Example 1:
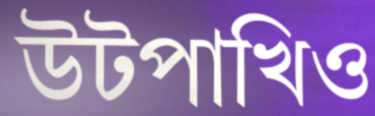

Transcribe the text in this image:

উটপাখিও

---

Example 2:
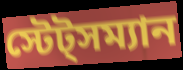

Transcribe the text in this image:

স্টেট্সম্যান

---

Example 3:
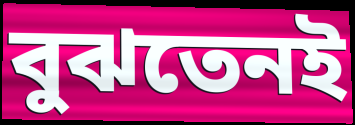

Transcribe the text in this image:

বুঝতেনই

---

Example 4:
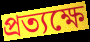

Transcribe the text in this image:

প্রত্যক্ষে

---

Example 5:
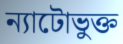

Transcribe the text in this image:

ন্যাটোভুক্ত